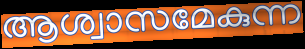
ആശ്വാസമേകുന്ന